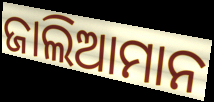
ଜାଲିଆମାନ